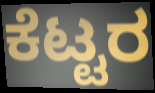
ಕೆಟ್ಟರ